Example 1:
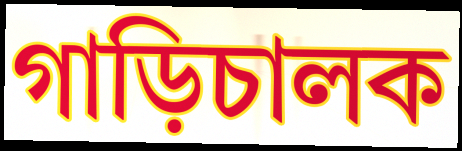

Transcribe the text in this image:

গাড়িচালক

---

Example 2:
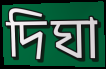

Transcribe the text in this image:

দিঘা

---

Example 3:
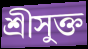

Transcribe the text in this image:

শ্রীসুক্ত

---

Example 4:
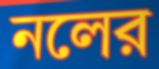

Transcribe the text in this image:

নলের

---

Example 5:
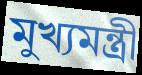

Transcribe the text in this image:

মুখ্যমন্ত্রী